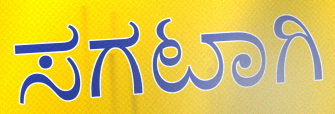
ಸಗಟಾಗಿ